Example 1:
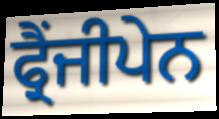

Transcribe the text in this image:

ਫ੍ਰੈਂਜੀਪੇਨ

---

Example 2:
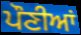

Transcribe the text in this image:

ਪੌਣੀਆਂ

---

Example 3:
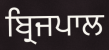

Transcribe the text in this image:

ਬ੍ਰਿਜਪਾਲ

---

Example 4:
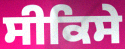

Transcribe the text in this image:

ਸੀਕਿਸੇ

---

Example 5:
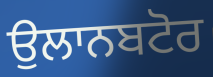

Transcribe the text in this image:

ਉਲਾਨਬਟੋਰ